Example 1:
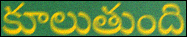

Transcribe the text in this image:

కూలుతుంది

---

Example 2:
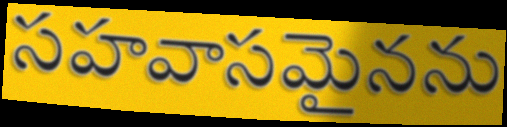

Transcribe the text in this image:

సహవాసమైనను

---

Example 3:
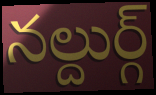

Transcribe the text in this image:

నల్దుర్గ్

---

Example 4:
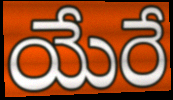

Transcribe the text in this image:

యేరే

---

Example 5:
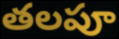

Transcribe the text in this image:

తలపూ